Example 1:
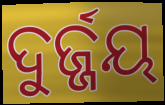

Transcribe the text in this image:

ଦୁର୍ଜ୍ଜୟ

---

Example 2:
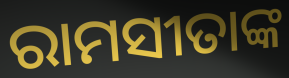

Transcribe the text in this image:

ରାମସୀତାଙ୍କ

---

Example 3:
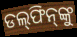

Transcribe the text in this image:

ଡଲ୍‌ଫିନ୍‌ଙ୍କୁ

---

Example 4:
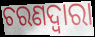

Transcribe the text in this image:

ଚରଣଦ୍ୱାରା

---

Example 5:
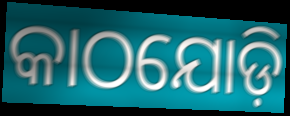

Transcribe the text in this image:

କାଠଯୋଡ଼ି